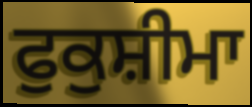
ਫੁਕੁਸ਼ੀਮਾ